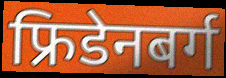
फ्रिडेनबर्ग